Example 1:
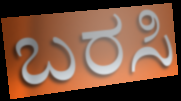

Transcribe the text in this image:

ಬರಸಿ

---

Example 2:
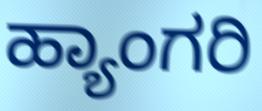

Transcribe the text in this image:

ಹ್ಯಾಂಗರಿ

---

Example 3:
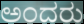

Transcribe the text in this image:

ಅಂದರು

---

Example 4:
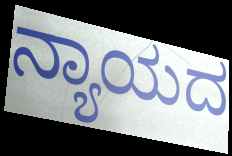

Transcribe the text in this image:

ನ್ಯಾಯದ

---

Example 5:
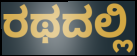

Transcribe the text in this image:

ರಥದಲ್ಲಿ